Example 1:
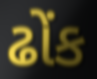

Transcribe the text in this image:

ઢોંક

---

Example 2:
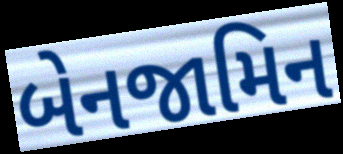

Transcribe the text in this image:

બેનજામિન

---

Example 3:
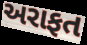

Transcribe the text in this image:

અરાફત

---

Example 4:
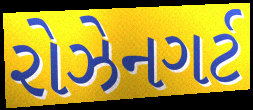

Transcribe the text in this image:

રોઝેનગર્ટ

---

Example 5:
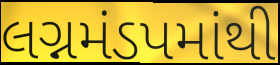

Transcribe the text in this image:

લગ્નમંડપમાંથી